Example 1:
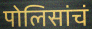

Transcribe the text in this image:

पोलिसांचं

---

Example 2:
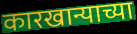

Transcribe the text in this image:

कारखान्याच्या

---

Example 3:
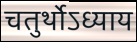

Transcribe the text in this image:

चतुर्थोऽध्याय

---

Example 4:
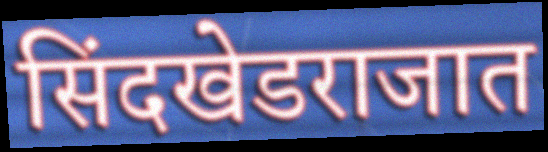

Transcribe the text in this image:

सिंदखेडराजात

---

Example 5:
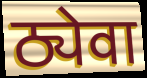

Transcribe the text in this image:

ठ्येवा